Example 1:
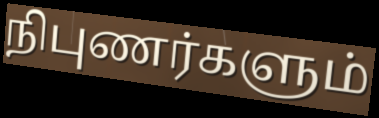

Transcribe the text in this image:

நிபுணர்களும்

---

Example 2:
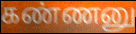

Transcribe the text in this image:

கண்ணனு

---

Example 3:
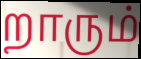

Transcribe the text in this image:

றாரும்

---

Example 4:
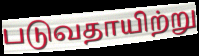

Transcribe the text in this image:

படுவதாயிற்று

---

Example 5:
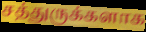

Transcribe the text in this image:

சத்துருக்களாக